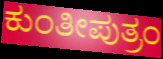
ಕುಂತೀಪುತ್ರಂ